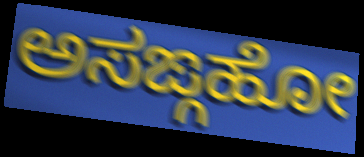
ಅಸಙ್ಗಹೋ